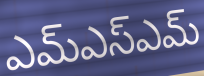
ఎమ్ఎస్ఎమ్